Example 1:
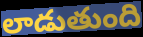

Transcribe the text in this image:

లాడుతుంది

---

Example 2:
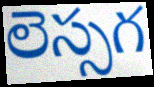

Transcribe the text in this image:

లెస్సగ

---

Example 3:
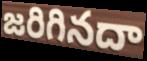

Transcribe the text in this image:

జరిగినదా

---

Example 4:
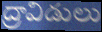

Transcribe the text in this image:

ద్రావిడులు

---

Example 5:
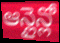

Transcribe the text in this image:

ఆన్లైన్లో